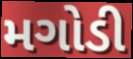
મગોડી